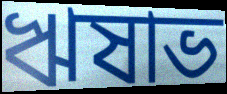
ঋষাভ